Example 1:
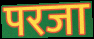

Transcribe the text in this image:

परजा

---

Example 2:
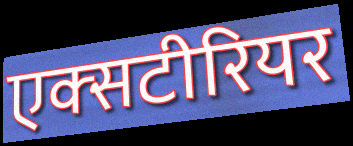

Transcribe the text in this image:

एक्‍सटीरियर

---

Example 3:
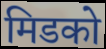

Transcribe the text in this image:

मिडको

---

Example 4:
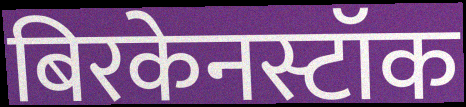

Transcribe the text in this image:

बिरकेनस्टॉक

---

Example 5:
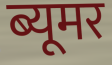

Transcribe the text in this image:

ब्यूमर